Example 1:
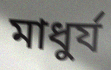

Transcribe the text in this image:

মাধুর্য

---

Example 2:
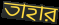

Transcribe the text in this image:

তাহার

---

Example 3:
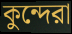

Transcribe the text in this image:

কুন্দেরা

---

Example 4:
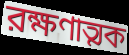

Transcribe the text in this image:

রক্ষণাত্মক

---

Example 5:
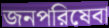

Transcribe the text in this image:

জনপরিষেবা